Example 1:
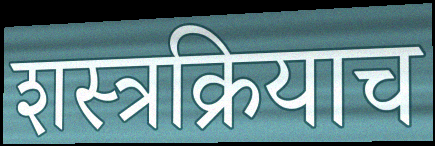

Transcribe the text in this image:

शस्त्रक्रियाच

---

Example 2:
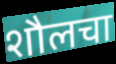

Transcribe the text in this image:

शौलचा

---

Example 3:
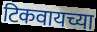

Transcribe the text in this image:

टिकवायच्या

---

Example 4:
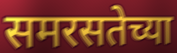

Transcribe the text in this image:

समरसतेच्या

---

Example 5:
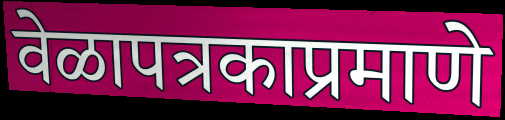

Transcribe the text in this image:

वेळापत्रकाप्रमाणे